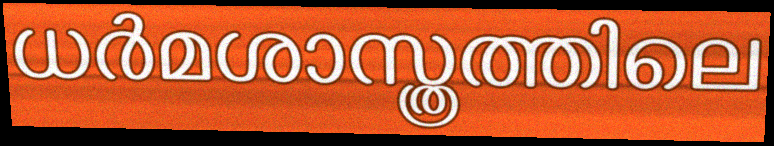
ധർമശാസ്ത്രത്തിലെ